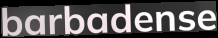
barbadense